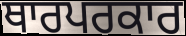
ਥਾਰਪਰਕਾਰ